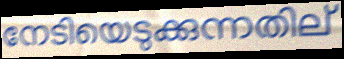
നേടിയെടുക്കുന്നതില്